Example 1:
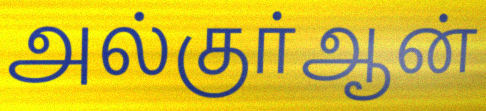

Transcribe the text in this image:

அல்குர்ஆன்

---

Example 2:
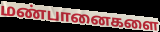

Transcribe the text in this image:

மண்பானைகளை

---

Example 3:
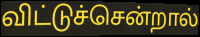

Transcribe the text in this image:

விட்டுச்சென்றால்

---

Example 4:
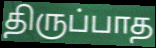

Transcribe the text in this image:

திருப்பாத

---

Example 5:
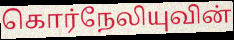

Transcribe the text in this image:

கொர்நேலியுவின்